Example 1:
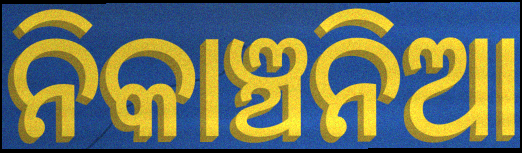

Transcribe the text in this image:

ନିକାଞ୍ଚନିଆ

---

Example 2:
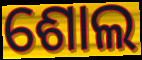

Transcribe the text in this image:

ଶୋଲ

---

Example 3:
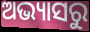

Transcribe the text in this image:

ଅଭ୍ୟାସରୁ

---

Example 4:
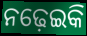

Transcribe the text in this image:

ନଢ଼େଇକି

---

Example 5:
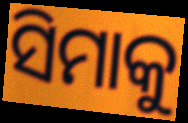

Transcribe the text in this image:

ସିମାକୁ